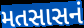
મતસાસનં